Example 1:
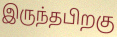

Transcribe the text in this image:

இருந்தபிறகு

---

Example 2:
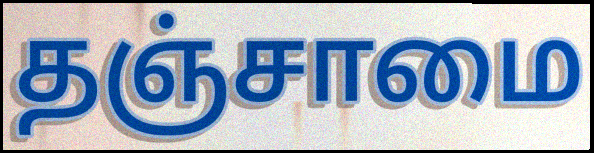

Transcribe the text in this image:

தஞ்சாமை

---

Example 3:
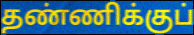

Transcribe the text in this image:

தண்ணிக்குப்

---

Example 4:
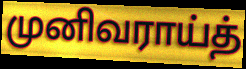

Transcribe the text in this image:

முனிவராய்த்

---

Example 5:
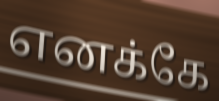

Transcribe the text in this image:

எனக்கே